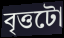
বৃত্তটো